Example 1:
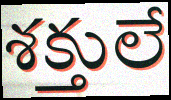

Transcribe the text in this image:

శక్తులే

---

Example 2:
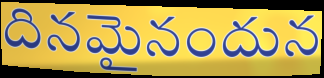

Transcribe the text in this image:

దినమైనందున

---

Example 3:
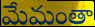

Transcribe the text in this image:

మేమంతా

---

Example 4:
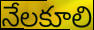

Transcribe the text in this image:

నేలకూలి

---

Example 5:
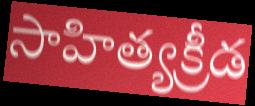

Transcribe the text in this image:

సాహిత్యక్రీడ